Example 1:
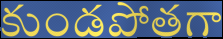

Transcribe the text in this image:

కుండపోతగా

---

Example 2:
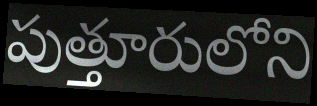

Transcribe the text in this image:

పుత్తూరులోని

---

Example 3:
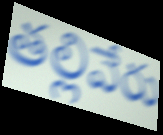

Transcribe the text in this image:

తల్లివేరు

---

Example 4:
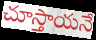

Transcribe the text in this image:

చూస్తాయనే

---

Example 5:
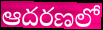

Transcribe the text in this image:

ఆదరణలో